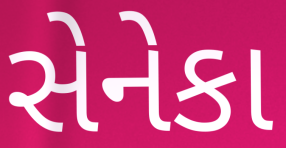
સેનેકા